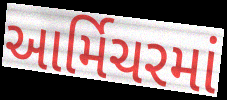
આર્મિચરમાં